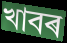
খাবৰ